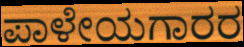
ಪಾಳೇಯಗಾರರ